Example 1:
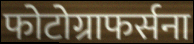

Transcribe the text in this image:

फोटोग्राफर्सना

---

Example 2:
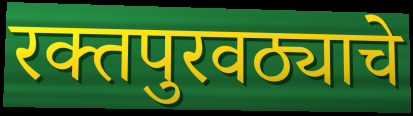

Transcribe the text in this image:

रक्तपुरवठ्याचे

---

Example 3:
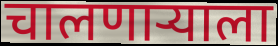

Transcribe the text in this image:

चालणाऱ्याला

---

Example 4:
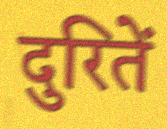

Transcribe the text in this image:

दुरितें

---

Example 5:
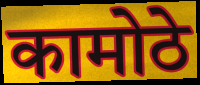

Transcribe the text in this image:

कामोठे